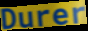
Durer